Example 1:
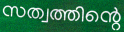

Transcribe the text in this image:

സത്വത്തിന്റെ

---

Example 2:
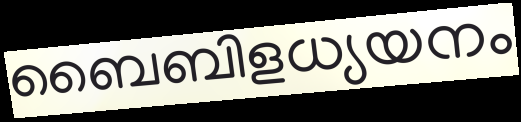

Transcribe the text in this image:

ബൈബിളധ്യയനം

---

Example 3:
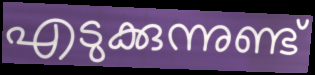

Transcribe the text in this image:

എടുക്കുന്നുണ്ട്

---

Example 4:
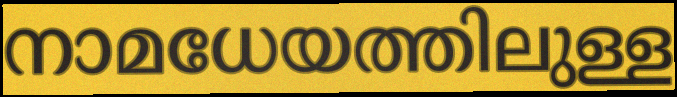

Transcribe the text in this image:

നാമധേയത്തിലുള്ള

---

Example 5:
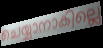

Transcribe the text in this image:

ചെയ്യാനാകില്ലെ